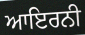
ਆਇਰਨੀ